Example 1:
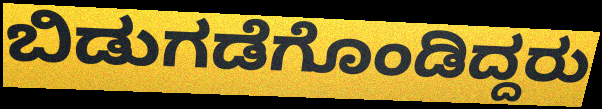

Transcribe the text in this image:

ಬಿಡುಗಡೆಗೊಂಡಿದ್ದರು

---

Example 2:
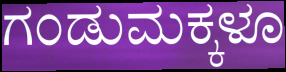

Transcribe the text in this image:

ಗಂಡುಮಕ್ಕಳೂ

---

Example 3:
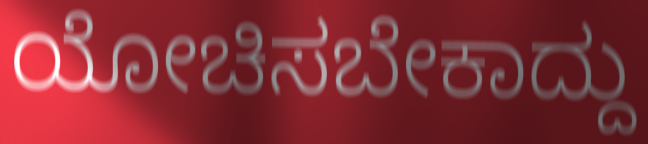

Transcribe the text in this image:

ಯೋಚಿಸಬೇಕಾದ್ದು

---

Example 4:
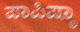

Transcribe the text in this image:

ಪಾಪಿಷ್ಠಾ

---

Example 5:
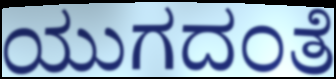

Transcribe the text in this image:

ಯುಗದಂತೆ